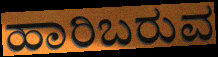
ಹಾರಿಬರುವ